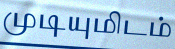
முடியுமிடம்